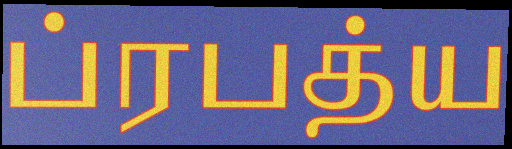
ப்ரபத்ய